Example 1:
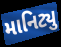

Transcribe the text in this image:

માનિટ્યુ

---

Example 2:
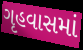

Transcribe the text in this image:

ગૃહવાસમાં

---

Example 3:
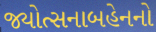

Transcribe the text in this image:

જ્યોત્સનાબહેનનો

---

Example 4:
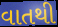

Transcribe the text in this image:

વાતથી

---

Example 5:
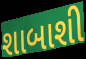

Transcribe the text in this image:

શાબાશી